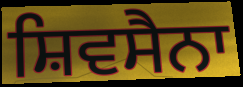
ਸ਼ਿਵਸੈਨਾ